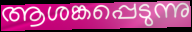
ആശങ്കപ്പെടുന്നു